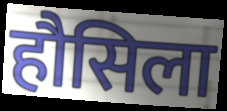
हौसिला